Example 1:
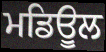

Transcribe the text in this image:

ਮਡਿਊਲ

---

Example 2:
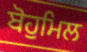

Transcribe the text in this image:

ਬੋਹੁਮਿਲ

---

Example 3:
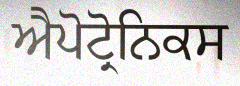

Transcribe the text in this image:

ਐਪੋਟ੍ਰੋਨਿਕਸ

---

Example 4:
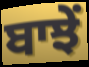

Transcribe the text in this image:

ਬਾਝੇਂ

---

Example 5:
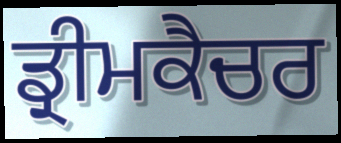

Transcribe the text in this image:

ਡ੍ਰੀਮਕੈਚਰ